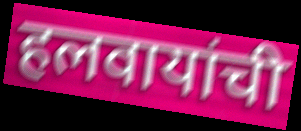
हलवायांची